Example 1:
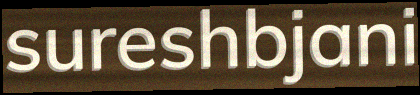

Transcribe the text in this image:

sureshbjani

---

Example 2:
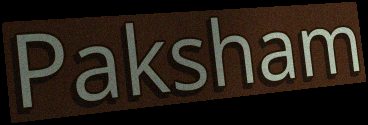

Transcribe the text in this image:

Paksham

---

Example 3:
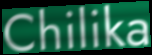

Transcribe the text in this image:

Chilika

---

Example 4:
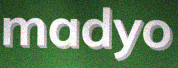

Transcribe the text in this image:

madyo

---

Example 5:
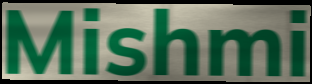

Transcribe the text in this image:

Mishmi